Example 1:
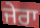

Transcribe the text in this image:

ਜੇਰਾ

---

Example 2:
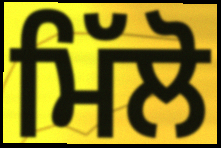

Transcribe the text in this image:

ਮਿੱਲੋ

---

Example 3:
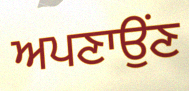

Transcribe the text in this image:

ਅਪਣਾਉਂਣ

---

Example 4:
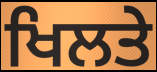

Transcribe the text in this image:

ਖਿਲਤੇ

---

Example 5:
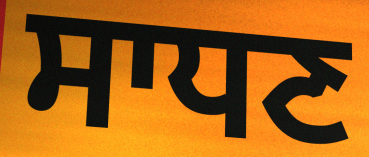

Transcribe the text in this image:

ਸਾਧਣ